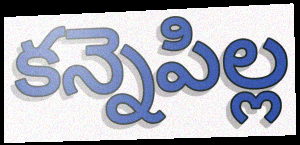
కన్నెపిల్ల